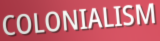
COLONIALISM